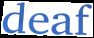
deaf